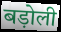
बड़ोली